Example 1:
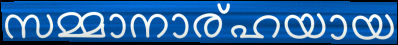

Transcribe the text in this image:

സമ്മാനാര്ഹയായ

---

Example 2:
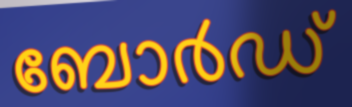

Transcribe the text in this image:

ബോർഡ്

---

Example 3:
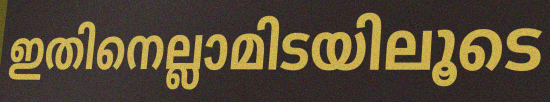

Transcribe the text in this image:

ഇതിനെല്ലാമിടയിലൂടെ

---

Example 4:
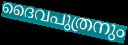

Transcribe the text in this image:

ദൈവപുത്രനും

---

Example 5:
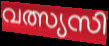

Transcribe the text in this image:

വത്സ്യസി